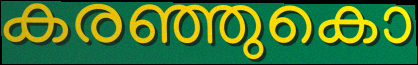
കരഞ്ഞുകൊ